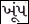
ખૂંપ